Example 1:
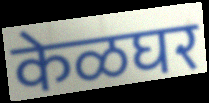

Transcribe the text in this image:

केळघर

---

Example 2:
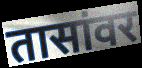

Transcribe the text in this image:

तासांवर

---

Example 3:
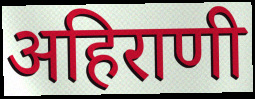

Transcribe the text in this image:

अहिराणी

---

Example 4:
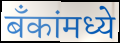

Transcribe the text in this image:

बँकांमध्ये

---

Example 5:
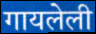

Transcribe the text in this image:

गायलेली